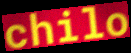
chilo